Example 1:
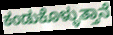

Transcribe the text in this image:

ಕಂಡುಕೊಳ್ಳುತ್ತಾನೆ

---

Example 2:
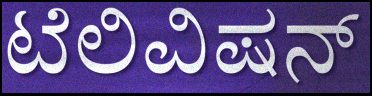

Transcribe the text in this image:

ಟೆಲಿವಿಷನ್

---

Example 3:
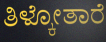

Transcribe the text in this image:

ತಿಳ್ಕೋತಾರೆ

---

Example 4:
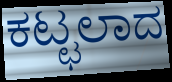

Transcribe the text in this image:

ಕಟ್ಟಲಾದ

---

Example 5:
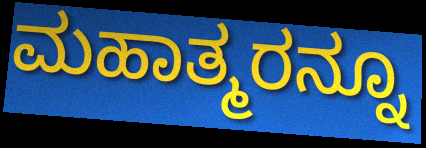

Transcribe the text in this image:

ಮಹಾತ್ಮರನ್ನೂ